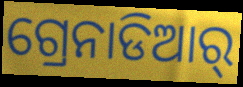
ଗ୍ରେନାଡିଆର୍